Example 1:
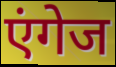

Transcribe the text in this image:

एंगेज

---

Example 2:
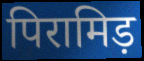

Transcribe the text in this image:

पिरामिड़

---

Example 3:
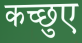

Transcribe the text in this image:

कच्छुए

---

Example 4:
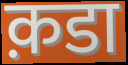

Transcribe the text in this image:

क़डा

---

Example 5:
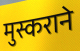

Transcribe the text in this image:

मुस्कराने